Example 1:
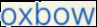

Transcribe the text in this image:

oxbow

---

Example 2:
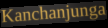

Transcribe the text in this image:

Kanchanjunga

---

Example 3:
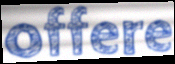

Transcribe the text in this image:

offere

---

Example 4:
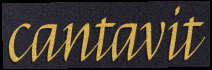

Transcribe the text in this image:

cantavit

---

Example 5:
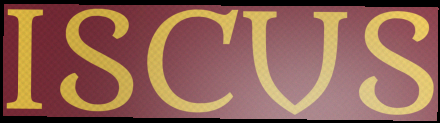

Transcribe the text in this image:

ISCUS